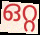
ഒറ്റ